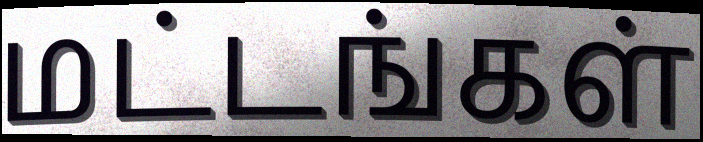
மட்டங்கள்